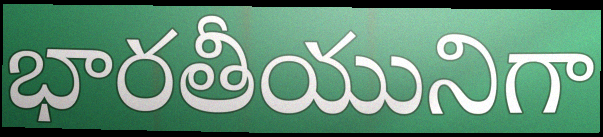
భారతీయునిగా